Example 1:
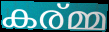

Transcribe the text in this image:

കര്മ്മ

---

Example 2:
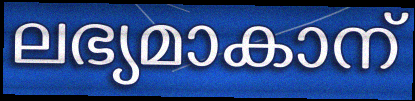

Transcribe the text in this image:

ലഭ്യമാകാന്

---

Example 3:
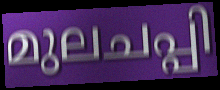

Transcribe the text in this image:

മുലചപ്പി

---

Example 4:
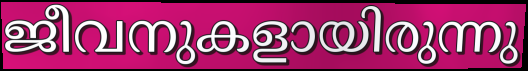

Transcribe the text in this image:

ജീവനുകളായിരുന്നു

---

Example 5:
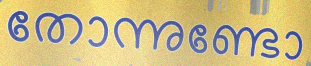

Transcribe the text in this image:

തോന്നുണ്ടോ